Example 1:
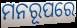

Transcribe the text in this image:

ମନରୂପରେ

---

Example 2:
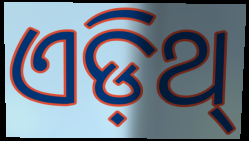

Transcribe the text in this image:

ଏଡ଼ିଥ୍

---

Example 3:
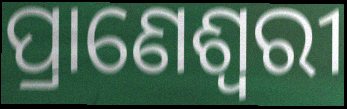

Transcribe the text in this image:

ପ୍ରାଣେଶ୍ୱରୀ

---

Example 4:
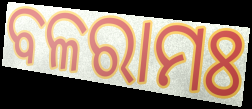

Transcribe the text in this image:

ବଳରାମଃ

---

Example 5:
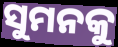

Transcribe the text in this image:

ସୁମନକୁ